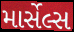
માર્સેલ્સ